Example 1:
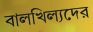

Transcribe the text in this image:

বালখিল্যদের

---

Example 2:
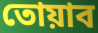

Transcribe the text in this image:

তোয়াব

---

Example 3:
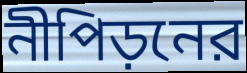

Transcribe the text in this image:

নীপিড়নের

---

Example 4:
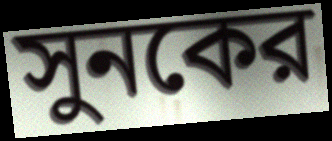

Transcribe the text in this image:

সুনকের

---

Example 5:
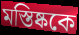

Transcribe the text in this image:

মস্তিষ্ককে